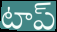
టాప్